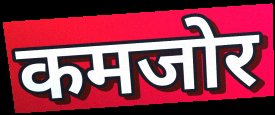
कमजोर